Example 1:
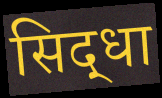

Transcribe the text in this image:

सिद्धा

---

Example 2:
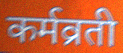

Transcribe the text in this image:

कर्मव्रती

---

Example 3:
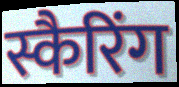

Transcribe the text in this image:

स्कैरिंग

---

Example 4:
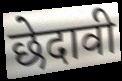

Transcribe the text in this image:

छेदावी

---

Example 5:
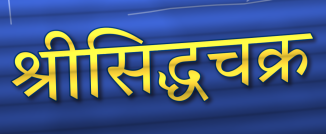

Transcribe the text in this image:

श्रीसिद्धचक्र